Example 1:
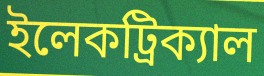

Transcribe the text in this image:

ইলেকট্রিক্যাল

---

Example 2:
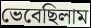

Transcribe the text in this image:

ভেবেছিলাম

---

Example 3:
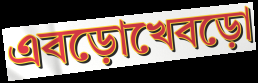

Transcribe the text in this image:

এবড়োখেবড়ো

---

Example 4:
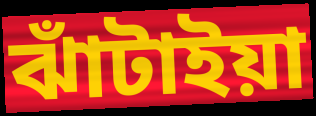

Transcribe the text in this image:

ঝাঁটাইয়া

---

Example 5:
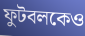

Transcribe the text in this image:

ফুটবলকেও